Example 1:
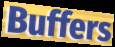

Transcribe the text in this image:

Buffers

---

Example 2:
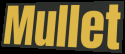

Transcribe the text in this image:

Mullet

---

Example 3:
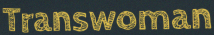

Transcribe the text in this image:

Transwoman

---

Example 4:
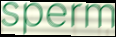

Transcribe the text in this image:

sperm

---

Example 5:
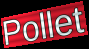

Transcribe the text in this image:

Pollet